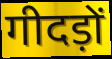
गीदड़ों